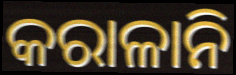
କରାଳାନି